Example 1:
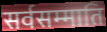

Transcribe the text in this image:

सर्वसम्माति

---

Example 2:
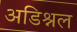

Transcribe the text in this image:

अडिश्नल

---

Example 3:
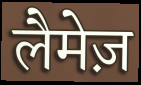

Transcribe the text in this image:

लैमेज़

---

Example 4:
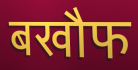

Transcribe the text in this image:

बखौफ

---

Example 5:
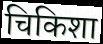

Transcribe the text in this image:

चिकिशा